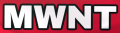
MWNT